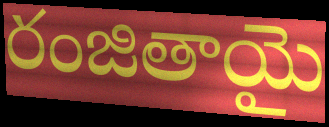
రంజితాయై